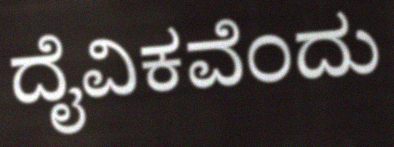
ದೈವಿಕವೆಂದು